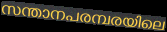
സന്താനപരമ്പരയിലെ